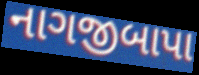
નાગજીબાપા